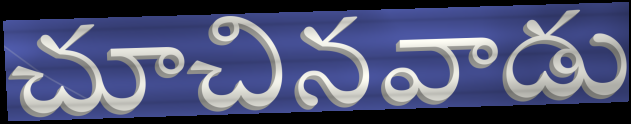
చూచినవాడు